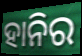
ହାନିର